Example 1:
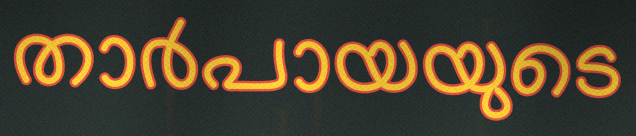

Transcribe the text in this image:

താർപായയുടെ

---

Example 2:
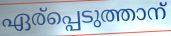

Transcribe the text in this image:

ഏര്പ്പെടുത്താന്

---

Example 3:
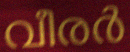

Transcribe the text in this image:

വീരർ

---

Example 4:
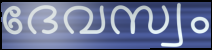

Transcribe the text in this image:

ദേവസ്വം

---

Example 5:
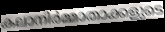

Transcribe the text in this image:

കലാനിർമ്മാതാക്കളുടെ